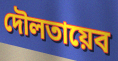
দৌলতায়েব